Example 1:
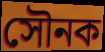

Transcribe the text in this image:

সৌনক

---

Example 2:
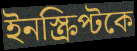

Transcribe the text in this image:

ইনস্ক্রিপ্টকে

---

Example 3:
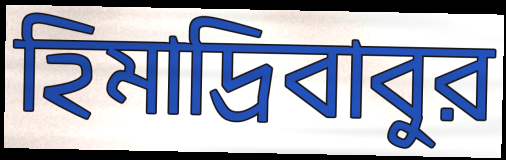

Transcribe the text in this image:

হিমাদ্রিবাবুর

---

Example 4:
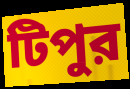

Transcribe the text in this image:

টিপুর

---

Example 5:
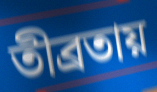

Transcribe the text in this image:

তীব্রতায়